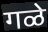
गळे